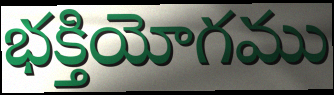
భక్తియోగము